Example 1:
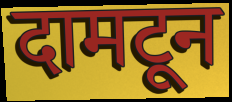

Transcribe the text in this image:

दामटून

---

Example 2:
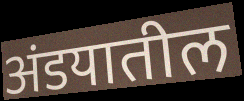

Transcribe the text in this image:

अंडयातील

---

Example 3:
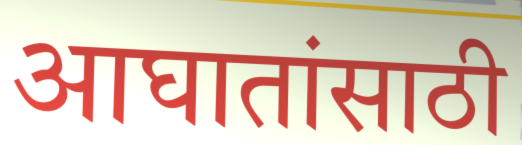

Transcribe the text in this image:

आघातांसाठी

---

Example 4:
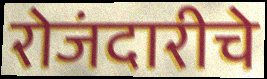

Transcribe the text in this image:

रोजंदारीचे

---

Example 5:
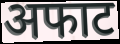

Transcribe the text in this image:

अफाट